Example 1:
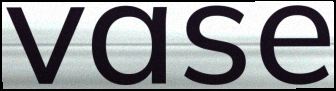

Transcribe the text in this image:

vase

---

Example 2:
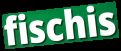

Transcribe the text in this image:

fischis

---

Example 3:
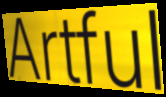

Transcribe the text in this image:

Artful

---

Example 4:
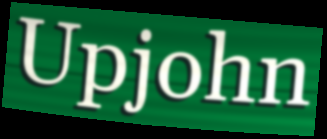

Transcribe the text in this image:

Upjohn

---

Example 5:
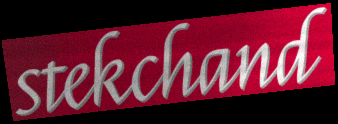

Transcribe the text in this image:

stekchand